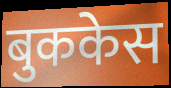
बुककेस